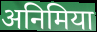
अनिमिया